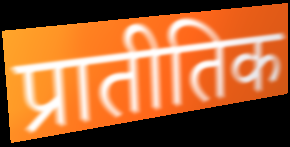
प्रातीतिक